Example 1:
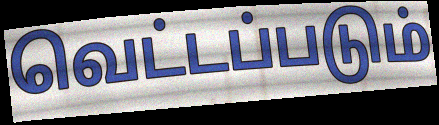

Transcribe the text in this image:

வெட்டப்படும்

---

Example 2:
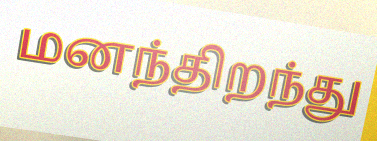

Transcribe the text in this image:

மனந்திறந்து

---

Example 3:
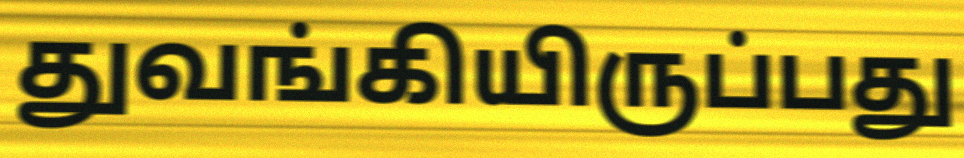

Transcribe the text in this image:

துவங்கியிருப்பது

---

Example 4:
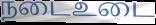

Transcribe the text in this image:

நடைஉடை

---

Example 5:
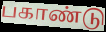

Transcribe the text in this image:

பகாண்டு